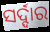
ସର୍ଦ୍ଦାର